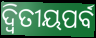
ଦ୍ୱିତୀୟପର୍ବ